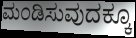
ಮಂಡಿಸುವುದಕ್ಕೂ